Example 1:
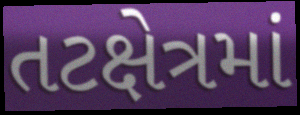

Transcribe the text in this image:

તટક્ષેત્રમાં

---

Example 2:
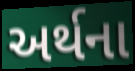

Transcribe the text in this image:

અર્થના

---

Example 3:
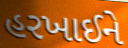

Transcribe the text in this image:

હરખાઈને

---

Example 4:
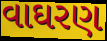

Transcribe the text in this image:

વાઘરણ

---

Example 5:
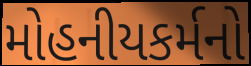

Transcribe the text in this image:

મોહનીયકર્મનો